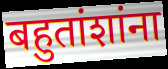
बहुतांशांना